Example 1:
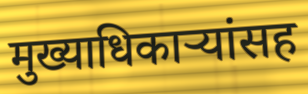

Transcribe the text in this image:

मुख्याधिकाऱ्यांसह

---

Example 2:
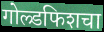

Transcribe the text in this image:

गोल्डफिशचा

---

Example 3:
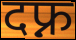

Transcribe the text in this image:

दफ्न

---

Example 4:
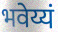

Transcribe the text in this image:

भवेय्यं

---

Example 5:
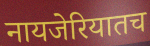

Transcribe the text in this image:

नायजेरियातच